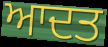
ਆਦਤ